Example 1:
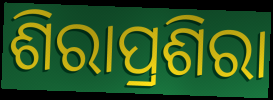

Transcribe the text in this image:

ଶିରାପ୍ରଶିରା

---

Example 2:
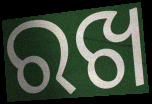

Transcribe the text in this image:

ରଖ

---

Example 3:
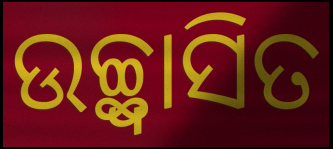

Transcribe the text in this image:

ଉଚ୍ଛ୍ୱାସିତ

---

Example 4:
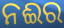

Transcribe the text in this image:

ନଈର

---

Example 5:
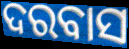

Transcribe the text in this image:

ଦରବାସ